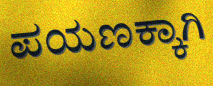
ಪಯಣಕ್ಕಾಗಿ